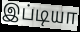
இப்டியா